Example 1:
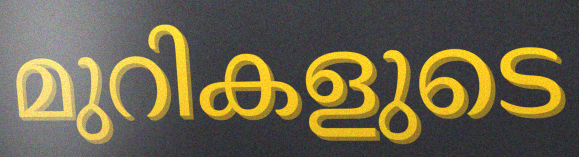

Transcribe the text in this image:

മുറികളുടെ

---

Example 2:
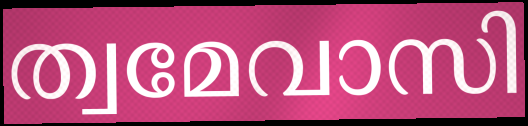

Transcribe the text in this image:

ത്വമേവാസി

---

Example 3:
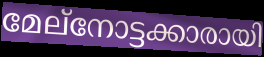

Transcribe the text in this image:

മേല്നോട്ടക്കാരായി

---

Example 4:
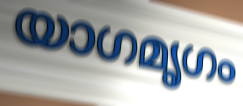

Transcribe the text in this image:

യാഗമൃഗം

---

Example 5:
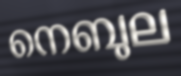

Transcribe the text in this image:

നെബുല